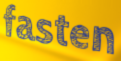
fasten